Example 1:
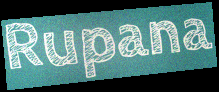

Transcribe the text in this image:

Rupana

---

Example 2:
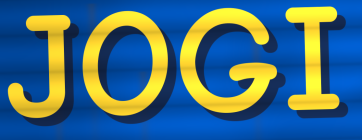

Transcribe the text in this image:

JOGI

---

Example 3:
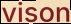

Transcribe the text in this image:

vison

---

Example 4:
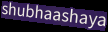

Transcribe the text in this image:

shubhaashaya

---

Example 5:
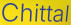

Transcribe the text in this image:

Chittal